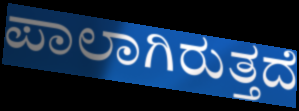
ಪಾಲಾಗಿರುತ್ತದೆ